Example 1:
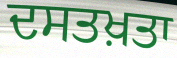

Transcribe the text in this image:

ਦਸਤਖ਼ਤਾ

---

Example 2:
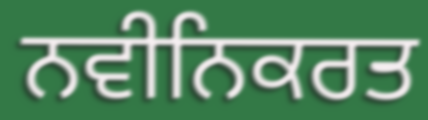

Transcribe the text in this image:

ਨਵੀਨਿਕਰਤ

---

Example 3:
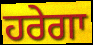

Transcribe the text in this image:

ਹਰੇਗਾ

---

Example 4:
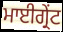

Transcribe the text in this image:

ਮਾਈਗ੍ਰੇਂਟ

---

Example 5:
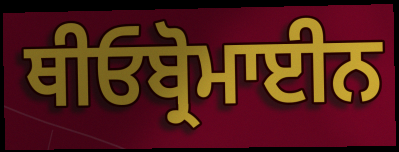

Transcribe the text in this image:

ਥੀਓਬ੍ਰੋਮਾਈਨ